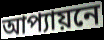
আপ্যায়নে